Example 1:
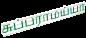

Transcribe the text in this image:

சுப்பராமய்யா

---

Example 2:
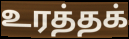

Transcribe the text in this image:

உரத்தக்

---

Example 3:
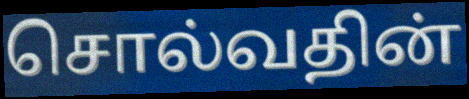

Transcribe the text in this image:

சொல்வதின்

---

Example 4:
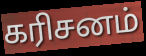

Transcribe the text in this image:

கரிசனம்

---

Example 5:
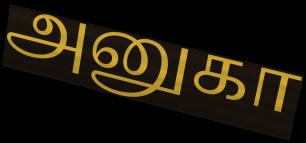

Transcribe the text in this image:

அனுகா